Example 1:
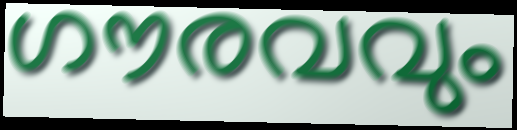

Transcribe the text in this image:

ഗൗരവവും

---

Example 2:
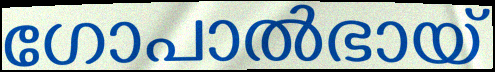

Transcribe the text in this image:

ഗോപാൽഭായ്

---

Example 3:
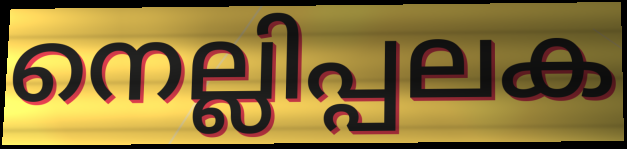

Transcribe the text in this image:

നെല്ലിപ്പലക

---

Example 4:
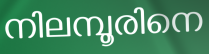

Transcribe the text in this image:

നിലമ്പൂരിനെ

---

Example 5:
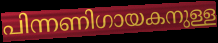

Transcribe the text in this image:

പിന്നണിഗായകനുള്ള